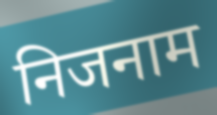
निजनाम